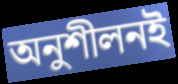
অনুশীলনই